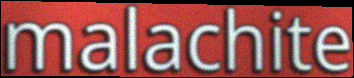
malachite